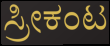
ಸ್ರೀಕಂಟ